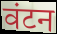
वंटन